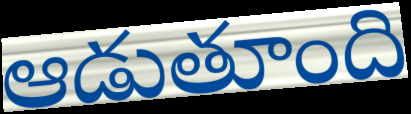
ఆడుతూంది